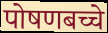
पोषणबच्चे